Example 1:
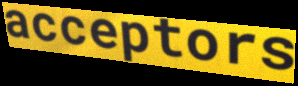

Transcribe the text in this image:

acceptors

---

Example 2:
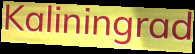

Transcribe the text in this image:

Kaliningrad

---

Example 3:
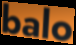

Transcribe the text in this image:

balo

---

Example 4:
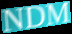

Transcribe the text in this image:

NDM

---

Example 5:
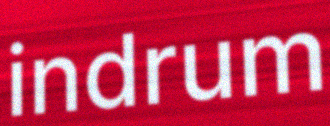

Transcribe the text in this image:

indrum